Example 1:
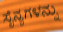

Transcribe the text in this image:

ಸೈನ್ಯಗಳನ್ನು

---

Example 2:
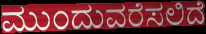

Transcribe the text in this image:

ಮುಂದುವರೆಸಲಿದೆ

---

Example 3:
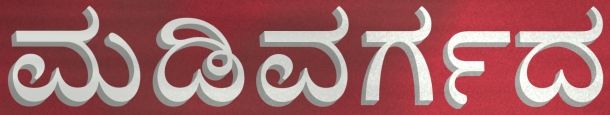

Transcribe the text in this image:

ಮಡಿವರ್ಗದ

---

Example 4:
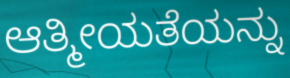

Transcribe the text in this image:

ಆತ್ಮೀಯತೆಯನ್ನು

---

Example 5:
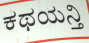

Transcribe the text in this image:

ಕಥಯನ್ತಿ